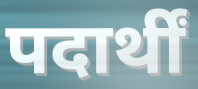
पदार्थीं